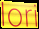
lori